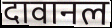
दावानल